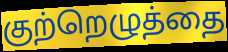
குற்றெழுத்தை